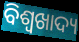
ବିଶ୍ୱଖାଦ୍ୟ